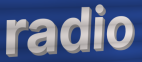
radio